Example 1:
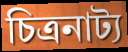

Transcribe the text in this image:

চিত্ৰনাট্য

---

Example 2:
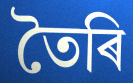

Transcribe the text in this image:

তৈৰি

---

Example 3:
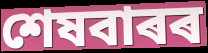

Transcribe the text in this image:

শেষবাৰৰ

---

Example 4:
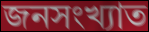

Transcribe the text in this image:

জনসংখ্যাত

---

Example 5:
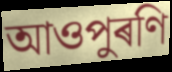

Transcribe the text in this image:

আওপুৰণি